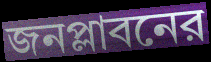
জনপ্লাবনের